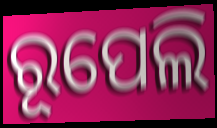
ରୂପେଲି